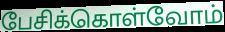
பேசிக்கொள்வோம்